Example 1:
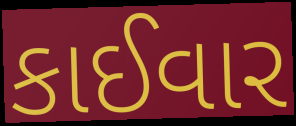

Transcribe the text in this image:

કાઈવાર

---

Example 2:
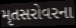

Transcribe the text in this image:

મૃતસરોવરના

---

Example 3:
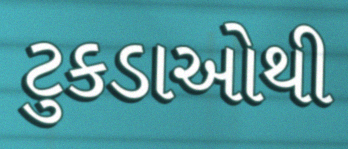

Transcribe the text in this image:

ટુકડાઓથી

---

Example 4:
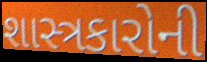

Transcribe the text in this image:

શાસ્ત્રકારોની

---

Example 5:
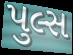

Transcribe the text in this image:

પુલ્સ